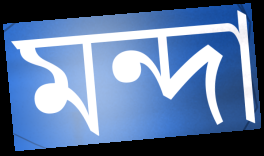
মন্দা